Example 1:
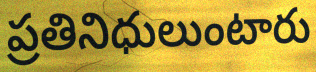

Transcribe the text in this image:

ప్రతినిధులుంటారు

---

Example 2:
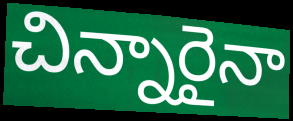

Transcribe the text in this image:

చిన్నారైనా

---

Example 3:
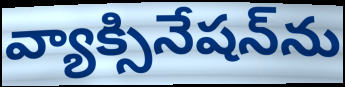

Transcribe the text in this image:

వ్యాక్సినేషన్‌ను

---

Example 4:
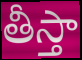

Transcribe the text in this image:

తీస్తా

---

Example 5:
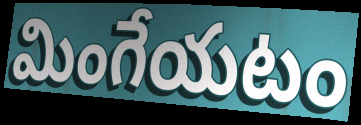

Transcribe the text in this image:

మింగేయటం